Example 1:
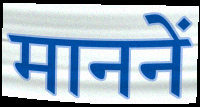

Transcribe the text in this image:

माननें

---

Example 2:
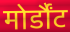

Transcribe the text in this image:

मोर्डौंट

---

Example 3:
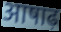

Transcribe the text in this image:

आषाढ़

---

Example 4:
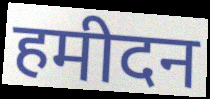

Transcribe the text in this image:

हमीदन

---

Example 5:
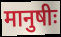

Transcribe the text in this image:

मानुषीः